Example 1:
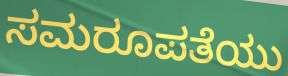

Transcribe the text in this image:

ಸಮರೂಪತೆಯು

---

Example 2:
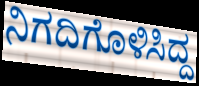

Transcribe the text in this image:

ನಿಗದಿಗೊಳಿಸಿದ್ದ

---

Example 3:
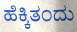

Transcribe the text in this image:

ಹೆಕ್ಕಿತಂದು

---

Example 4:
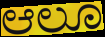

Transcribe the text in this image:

ಆಲೂ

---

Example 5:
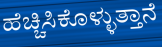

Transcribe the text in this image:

ಹೆಚ್ಚಿಸಿಕೊಳ್ಳುತ್ತಾನೆ